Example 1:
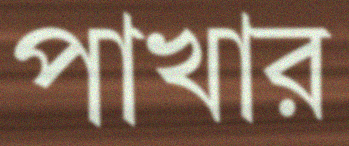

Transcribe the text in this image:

পাখার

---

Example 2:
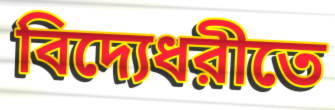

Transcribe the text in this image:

বিদ্যেধরীতে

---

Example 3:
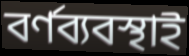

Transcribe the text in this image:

বর্ণব্যবস্থাই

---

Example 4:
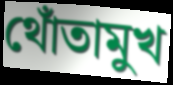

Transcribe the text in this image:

থোঁতামুখ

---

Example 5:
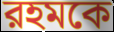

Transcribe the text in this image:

রহমকে